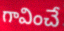
గావించే